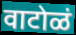
वाटोळं